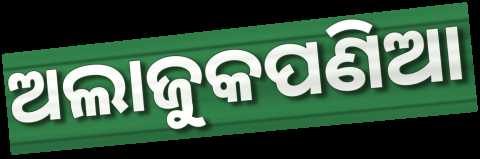
ଅଲାଜୁକପଣିଆ